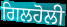
ਗਿਲਹੋਲੀ